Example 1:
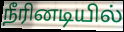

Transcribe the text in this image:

நீரினடியில்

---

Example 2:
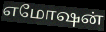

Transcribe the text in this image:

எமோஷன்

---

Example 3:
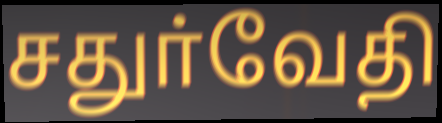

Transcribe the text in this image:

சதுர்வேதி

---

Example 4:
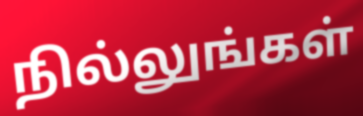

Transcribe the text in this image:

நில்லுங்கள்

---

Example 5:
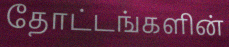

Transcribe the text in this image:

தோட்டங்களின்